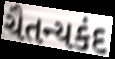
ચૈતન્યકંદ